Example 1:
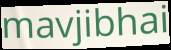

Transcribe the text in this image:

mavjibhai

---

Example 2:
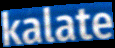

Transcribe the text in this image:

kalate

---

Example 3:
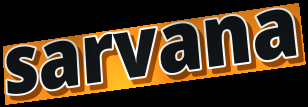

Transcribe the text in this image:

sarvana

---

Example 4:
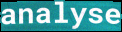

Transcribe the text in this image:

analyse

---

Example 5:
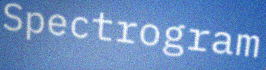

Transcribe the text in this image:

Spectrogram